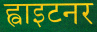
ह्वाइटनर